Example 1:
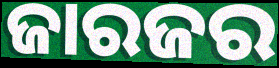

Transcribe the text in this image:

ଜାରଜର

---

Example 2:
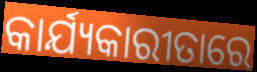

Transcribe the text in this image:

କାର୍ଯ୍ୟକାରୀତାରେ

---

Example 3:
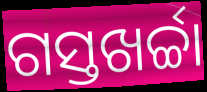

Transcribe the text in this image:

ଗସ୍ତଖର୍ଚ୍ଚା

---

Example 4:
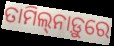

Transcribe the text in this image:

ତାମିଲ୍‌ନାଡ଼ୁରେ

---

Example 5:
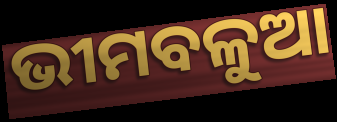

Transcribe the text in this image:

ଭୀମବଳୁଆ